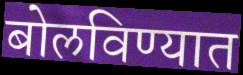
बोलविण्यात